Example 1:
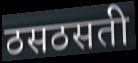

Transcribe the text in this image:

ठसठसती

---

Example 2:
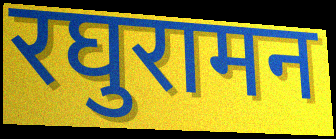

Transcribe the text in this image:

रघुरामन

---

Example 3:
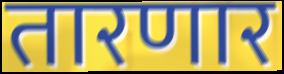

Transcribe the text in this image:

तारणार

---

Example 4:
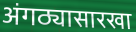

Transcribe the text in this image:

अंगठ्यासारखा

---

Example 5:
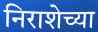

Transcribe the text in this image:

निराशेच्या